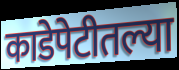
काडेपेटीतल्या